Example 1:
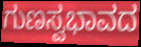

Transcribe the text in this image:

ಗುಣಸ್ವಭಾವದ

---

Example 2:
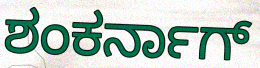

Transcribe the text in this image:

ಶಂಕರ್ನಾಗ್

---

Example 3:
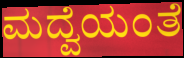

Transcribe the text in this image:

ಮದ್ವೆಯಂತೆ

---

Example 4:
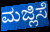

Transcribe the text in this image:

ಮಜ್ಲಿಸೆ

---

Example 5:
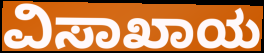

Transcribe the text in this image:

ವಿಸಾಖಾಯ